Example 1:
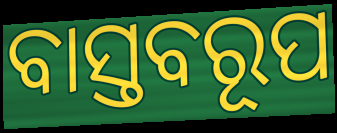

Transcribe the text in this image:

ବାସ୍ତବରୂପ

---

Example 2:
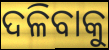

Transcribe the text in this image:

ଦଳିବାକୁ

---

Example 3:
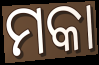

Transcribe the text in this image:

ମକା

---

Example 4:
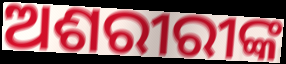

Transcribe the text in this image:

ଅଶରୀରୀଙ୍କ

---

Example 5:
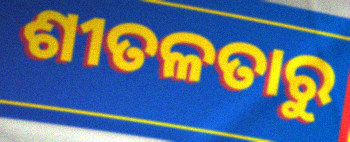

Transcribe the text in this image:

ଶୀତଳତାରୁ